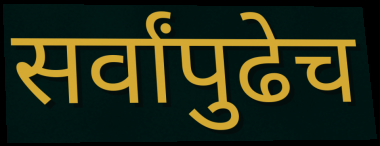
सर्वांपुढेच